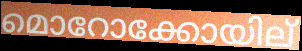
മൊറോക്കോയില്